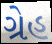
ગ્રેહ